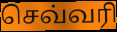
செவ்வரி